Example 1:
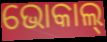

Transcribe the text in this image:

ଭୋକାଲ୍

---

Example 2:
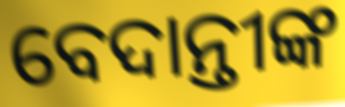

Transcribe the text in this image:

ବେଦାନ୍ତୀଙ୍କ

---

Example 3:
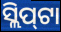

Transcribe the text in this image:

ସ୍ଲିପ୍‌ଟା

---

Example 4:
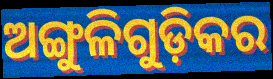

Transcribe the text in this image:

ଅଙ୍ଗୁଳିଗୁଡ଼ିକର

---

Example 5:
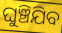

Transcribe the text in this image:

ଘୁଞ୍ଚିଯିବ